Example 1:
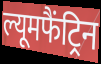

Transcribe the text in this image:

ल्यूमफैंट्रिन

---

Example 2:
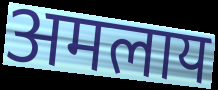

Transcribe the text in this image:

अमलाय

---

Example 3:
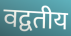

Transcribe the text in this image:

वद्वतीय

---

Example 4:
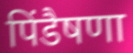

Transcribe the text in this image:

पिंडैषणा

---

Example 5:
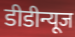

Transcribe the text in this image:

डीडीन्यूज